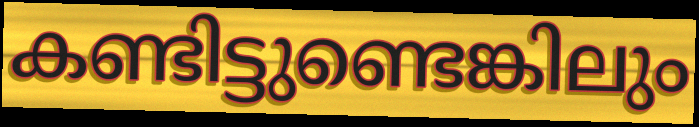
കണ്ടിട്ടുണ്ടെങ്കിലും